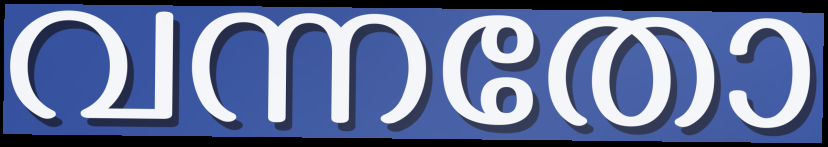
വന്നതോ